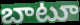
బాటూ